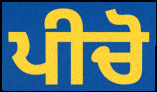
ਪੀਚੋ